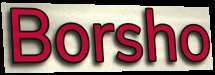
Borsho